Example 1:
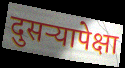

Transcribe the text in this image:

दुसऱ्यापेक्षा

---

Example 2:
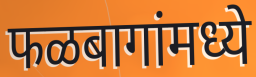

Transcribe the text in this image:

फळबागांमध्ये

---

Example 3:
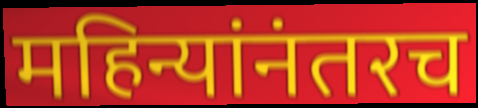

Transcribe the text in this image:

महिन्यांनंतरच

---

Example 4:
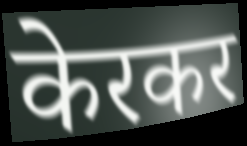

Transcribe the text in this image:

केरकर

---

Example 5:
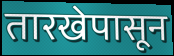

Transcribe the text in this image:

तारखेपासून